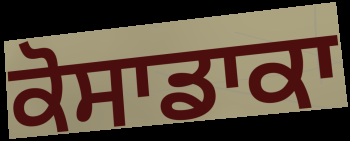
ਕੋਸਾਡਾਕਾ